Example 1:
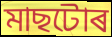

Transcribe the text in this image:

মাছটোৰ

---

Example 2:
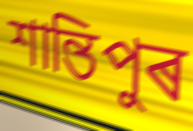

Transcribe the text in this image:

শান্তিপুৰ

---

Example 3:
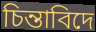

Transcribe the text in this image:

চিন্তাবিদে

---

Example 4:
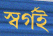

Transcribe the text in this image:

স্বৰ্গই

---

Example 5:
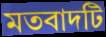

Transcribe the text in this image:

মতবাদটি